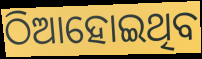
ଠିଆହୋଇଥିବ